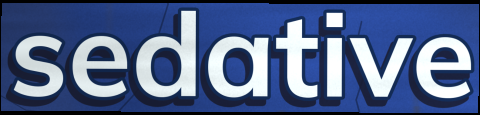
sedative